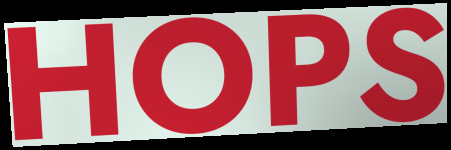
HOPS